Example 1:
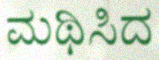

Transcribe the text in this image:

ಮಥಿಸಿದ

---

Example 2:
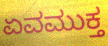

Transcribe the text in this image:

ಏವಮುಕ್ತ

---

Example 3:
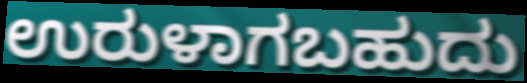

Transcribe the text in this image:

ಉರುಳಾಗಬಹುದು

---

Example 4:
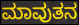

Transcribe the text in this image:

ಮಾವುತನ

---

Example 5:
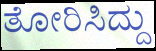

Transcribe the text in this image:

ತೋರಿಸಿದ್ದು